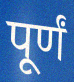
पूर्णं